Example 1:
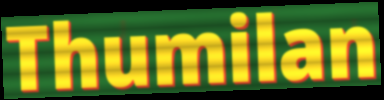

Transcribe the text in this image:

Thumilan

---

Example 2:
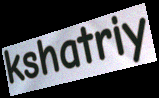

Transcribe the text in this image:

kshatriy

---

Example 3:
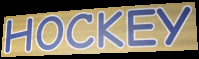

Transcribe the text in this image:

HOCKEY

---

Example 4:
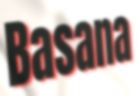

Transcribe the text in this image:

Basana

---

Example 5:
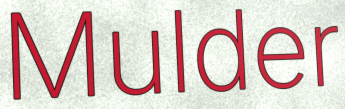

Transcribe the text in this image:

Mulder